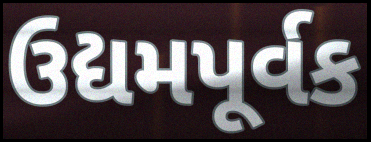
ઉદ્યમપૂર્વક